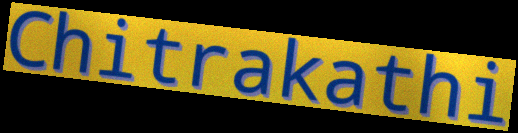
Chitrakathi